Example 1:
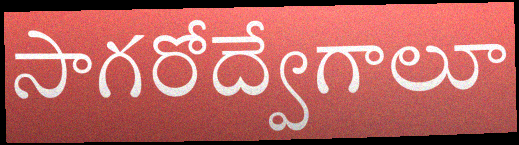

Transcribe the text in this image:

సాగరోద్వేగాలూ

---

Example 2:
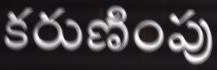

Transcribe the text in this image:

కరుణింపు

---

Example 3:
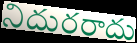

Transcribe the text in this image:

నిదురరాదు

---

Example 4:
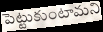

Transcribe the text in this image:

పెట్టుకుంటామని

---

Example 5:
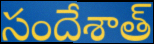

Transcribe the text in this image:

సందేశాత్